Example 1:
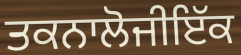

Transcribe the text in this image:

ਤਕਨਾਲੋਜੀਇੱਕ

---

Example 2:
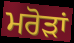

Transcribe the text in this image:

ਮਰੋੜਾਂ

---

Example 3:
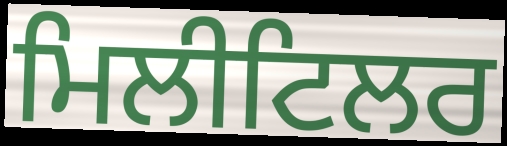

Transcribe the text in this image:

ਮਿਲੀਟਿਲਰ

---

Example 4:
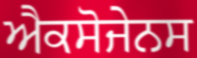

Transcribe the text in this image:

ਐਕਸੋਜੇਨਸ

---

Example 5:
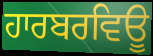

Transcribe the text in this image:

ਹਾਰਬਰਵਿਊ